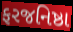
ફરજનિષ્ઠા